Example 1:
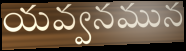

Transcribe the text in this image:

యవ్వనమున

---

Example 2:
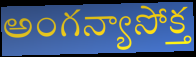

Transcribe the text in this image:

అంగన్యాసోక్త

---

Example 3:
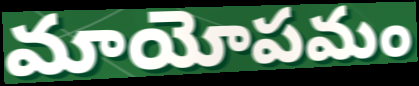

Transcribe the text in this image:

మాయోపమం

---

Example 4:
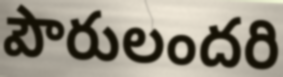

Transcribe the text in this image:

పౌరులందరి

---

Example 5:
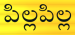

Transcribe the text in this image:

పిల్లపిల్ల